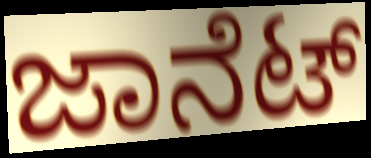
ಜಾನೆಟ್